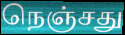
நெஞ்சது